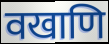
वखाणि